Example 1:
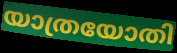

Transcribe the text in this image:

യാത്രയോതി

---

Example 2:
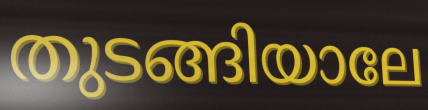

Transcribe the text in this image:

തുടങ്ങിയാലേ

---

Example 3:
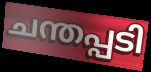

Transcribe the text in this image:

ചന്തപ്പടി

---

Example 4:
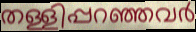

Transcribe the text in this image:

തള്ളിപ്പറഞ്ഞവർ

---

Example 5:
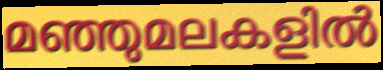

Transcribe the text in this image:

മഞ്ഞുമലകളിൽ